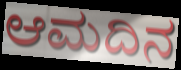
ಆಮದಿನ